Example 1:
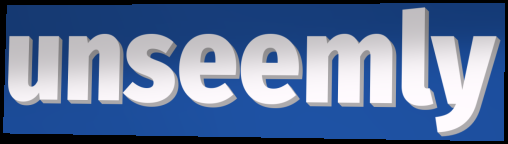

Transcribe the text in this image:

unseemly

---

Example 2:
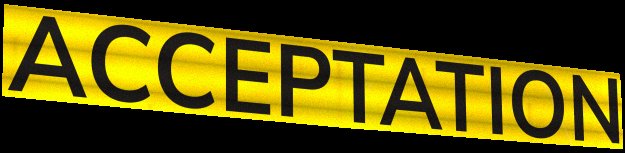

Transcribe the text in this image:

ACCEPTATION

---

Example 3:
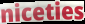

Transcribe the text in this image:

niceties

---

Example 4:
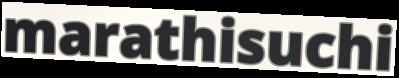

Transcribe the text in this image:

marathisuchi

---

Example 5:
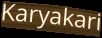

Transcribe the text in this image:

Karyakari